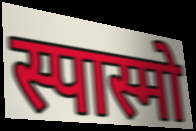
स्पास्मो